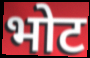
भोट